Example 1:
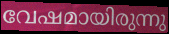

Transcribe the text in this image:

വേഷമായിരുന്നു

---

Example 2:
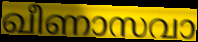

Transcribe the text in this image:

ഖീണാസവാ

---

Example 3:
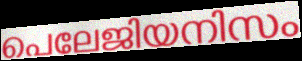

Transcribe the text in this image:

പെലേജിയനിസം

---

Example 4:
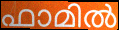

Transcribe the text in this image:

ഫാമിൽ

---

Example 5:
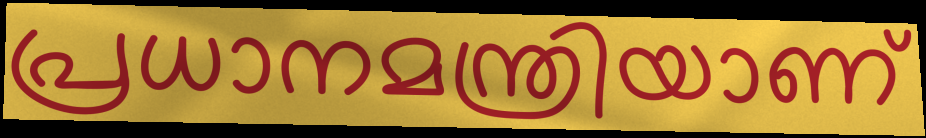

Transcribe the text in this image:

പ്രധാനമന്ത്രിയാണ്